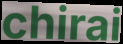
chirai